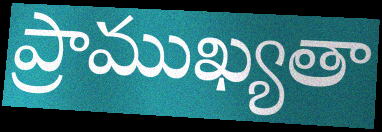
ప్రాముఖ్యతా